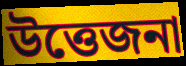
উত্তেজনা